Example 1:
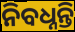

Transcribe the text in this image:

ନିବଧ୍ନନ୍ତି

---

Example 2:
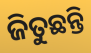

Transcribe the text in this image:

ଜିତୁଛନ୍ତି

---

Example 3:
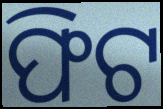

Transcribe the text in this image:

ଫିଟ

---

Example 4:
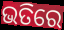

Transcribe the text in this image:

ଭତିରେ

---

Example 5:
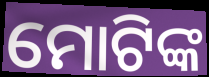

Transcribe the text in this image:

ମୋଟିଙ୍କ